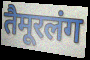
तैमूरलंग